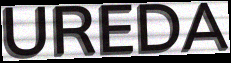
UREDA